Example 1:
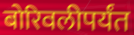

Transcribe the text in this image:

बोरिवलीपर्यंत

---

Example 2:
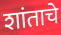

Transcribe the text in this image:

शांताचे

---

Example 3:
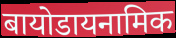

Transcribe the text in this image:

बायोडायनामिक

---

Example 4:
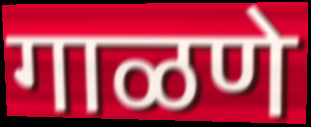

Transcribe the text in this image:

गाळणे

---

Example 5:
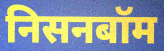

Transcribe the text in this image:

निसनबॉम